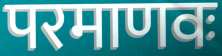
परमाणवः